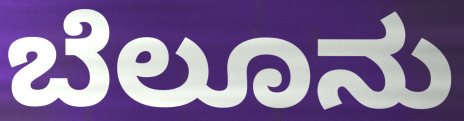
ಬೆಲೂನು